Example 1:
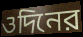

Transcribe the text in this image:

ওদিনের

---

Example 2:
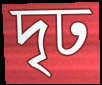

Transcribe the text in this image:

দৃঢ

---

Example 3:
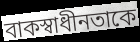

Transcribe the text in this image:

বাকস্বাধীনতাকে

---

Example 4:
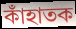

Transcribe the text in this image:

কাঁহাতক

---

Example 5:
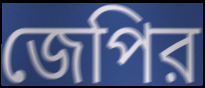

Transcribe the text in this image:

জেপির